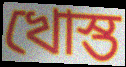
খোস্ত